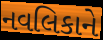
નવલિકાને